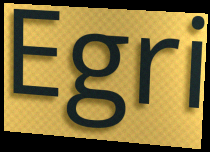
Egri